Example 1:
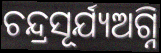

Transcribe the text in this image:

ଚନ୍ଦ୍ରସୂର୍ଯ୍ୟଅଗ୍ନି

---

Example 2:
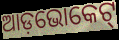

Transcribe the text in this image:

ଆଡ଼ଭୋକେଟ୍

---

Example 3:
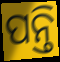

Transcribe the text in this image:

ପନ୍ତି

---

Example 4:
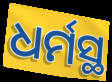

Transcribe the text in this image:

ଧର୍ମସ୍ଥ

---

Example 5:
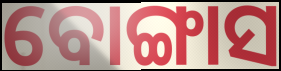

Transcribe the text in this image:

ବୋଙ୍ଗାସ